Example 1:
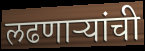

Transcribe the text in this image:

लढणाऱ्यांची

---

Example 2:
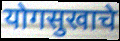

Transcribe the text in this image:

योगसुखाचे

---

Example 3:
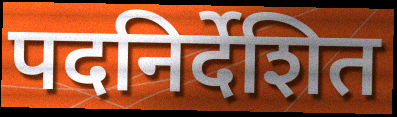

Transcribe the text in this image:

पदनिर्देशित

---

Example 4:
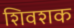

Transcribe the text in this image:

शिवशक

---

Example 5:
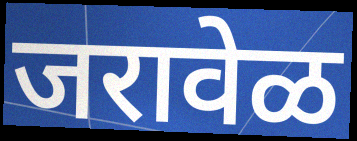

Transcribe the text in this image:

जरावेळ